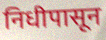
निधीपासून